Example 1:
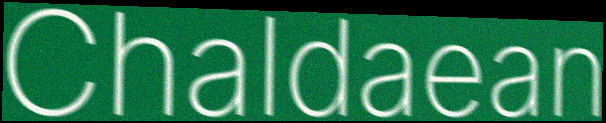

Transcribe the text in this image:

Chaldaean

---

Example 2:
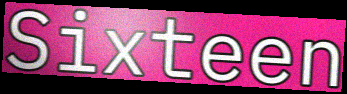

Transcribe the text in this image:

Sixteen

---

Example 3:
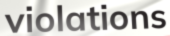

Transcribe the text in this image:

violations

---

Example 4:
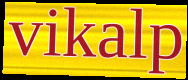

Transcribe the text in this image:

vikalp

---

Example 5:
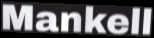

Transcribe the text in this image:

Mankell